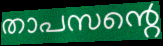
താപസന്റെ